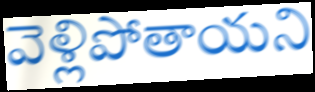
వెళ్లిపోతాయని